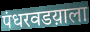
पंधरवडय़ाला